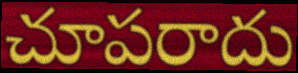
చూపరాదు